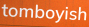
tomboyish